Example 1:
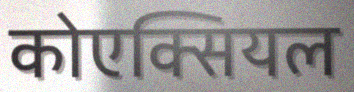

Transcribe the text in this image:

कोएक्सियल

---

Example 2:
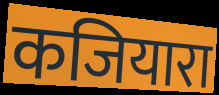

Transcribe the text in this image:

कजियारा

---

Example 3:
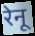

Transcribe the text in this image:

रेनू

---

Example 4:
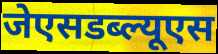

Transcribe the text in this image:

जेएसडब्ल्यूएस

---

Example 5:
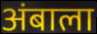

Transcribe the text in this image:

अंबाला